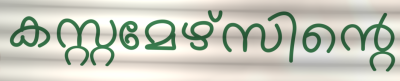
കസ്റ്റമേഴ്സിന്റെ